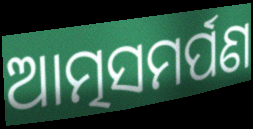
ଆତ୍ମସମର୍ପଣ